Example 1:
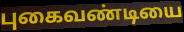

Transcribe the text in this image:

புகைவண்டியை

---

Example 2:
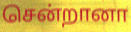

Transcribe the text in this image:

சென்றானா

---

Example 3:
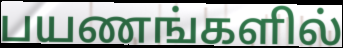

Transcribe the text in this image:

பயணங்களில்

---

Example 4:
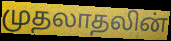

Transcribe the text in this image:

முதலாதலின்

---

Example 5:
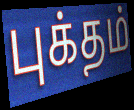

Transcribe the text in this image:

புக்தம்